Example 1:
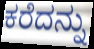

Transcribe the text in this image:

ಕರೆದನ್ನು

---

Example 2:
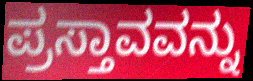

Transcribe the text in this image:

ಪ್ರಸ್ತಾವವನ್ನು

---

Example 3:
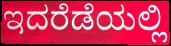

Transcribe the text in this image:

ಇದರೆಡೆಯಲ್ಲಿ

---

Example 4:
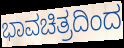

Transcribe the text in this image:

ಭಾವಚಿತ್ರದಿಂದ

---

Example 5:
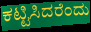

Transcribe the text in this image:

ಕಟ್ಟಿಸಿದರೆಂದು